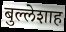
बुल्लेशाह